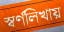
স্বর্ণলিখায়